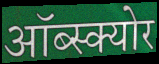
ऑब्स्क्योर